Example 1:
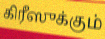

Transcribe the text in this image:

கிரீஸுக்கும்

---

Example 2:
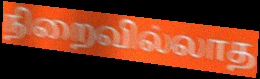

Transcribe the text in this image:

நிறைவில்லாத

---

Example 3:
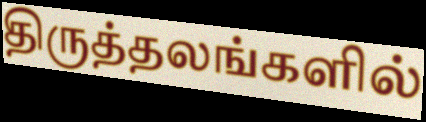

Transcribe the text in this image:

திருத்தலங்களில்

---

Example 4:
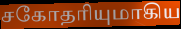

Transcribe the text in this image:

சகோதரியுமாகிய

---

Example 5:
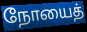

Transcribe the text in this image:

நோயைத்